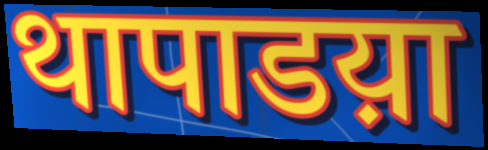
थापाडय़ा